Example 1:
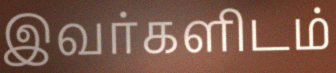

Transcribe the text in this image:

இவர்களிடம்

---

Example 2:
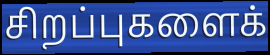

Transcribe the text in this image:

சிறப்புகளைக்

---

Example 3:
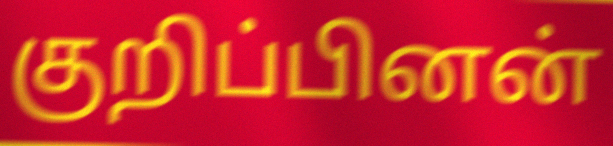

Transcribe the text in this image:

குறிப்பினன்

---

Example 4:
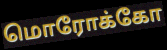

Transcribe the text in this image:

மொரோக்கோ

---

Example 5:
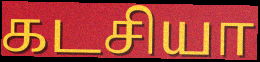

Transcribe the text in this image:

கடசியா